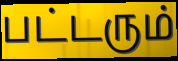
பட்டரும்